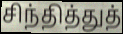
சிந்தித்துத்